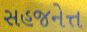
સહજનેત્ત